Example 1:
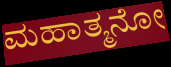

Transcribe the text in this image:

ಮಹಾತ್ಮನೋ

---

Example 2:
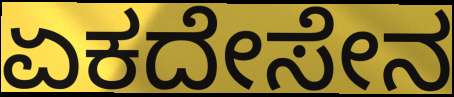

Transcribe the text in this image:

ಏಕದೇಸೇನ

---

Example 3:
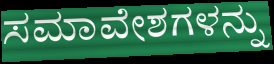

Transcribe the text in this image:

ಸಮಾವೇಶಗಳನ್ನು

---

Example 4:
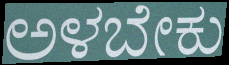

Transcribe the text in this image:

ಅಳಬೇಕು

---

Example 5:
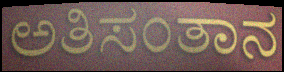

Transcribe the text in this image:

ಅತಿಸಂತಾನ